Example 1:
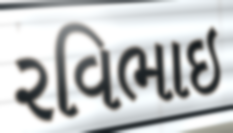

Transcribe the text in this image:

રવિભાઇ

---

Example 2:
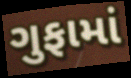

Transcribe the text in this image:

ગુફામાં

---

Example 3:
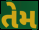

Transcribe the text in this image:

તેમ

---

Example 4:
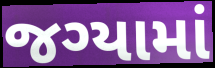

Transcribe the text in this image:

જગ્યામાં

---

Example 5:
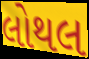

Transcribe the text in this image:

લોથલ